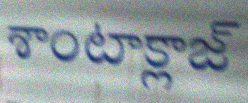
శాంటాక్లాజ్